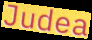
Judea